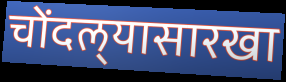
चोंदल्यासारखा